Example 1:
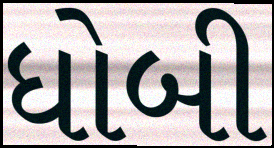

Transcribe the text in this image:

ધોબી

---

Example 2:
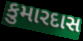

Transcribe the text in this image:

કુમારદાસ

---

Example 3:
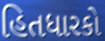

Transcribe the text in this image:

હિતધારકો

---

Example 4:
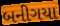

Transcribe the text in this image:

બનીગયા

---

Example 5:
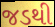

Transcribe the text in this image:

જડથી